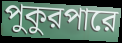
পুকুরপারে